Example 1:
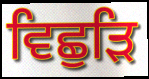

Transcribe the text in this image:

ਵਿਛੁੜਿ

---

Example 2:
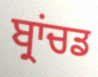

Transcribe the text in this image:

ਬ੍ਰਾਂਚਡ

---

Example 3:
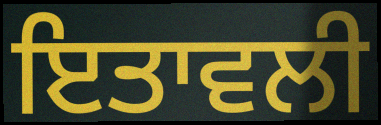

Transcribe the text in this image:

ਇਤਾਵਲੀ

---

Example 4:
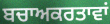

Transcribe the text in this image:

ਬਚਾਅਕਰਤਾਵਾਂ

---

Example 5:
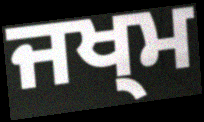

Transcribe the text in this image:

ਜਖ੍ਮ